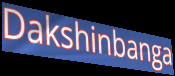
Dakshinbanga